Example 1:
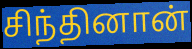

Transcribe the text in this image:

சிந்தினான்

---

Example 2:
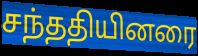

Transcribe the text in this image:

சந்ததியினரை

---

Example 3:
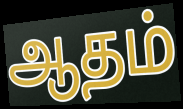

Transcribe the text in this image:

ஆதம்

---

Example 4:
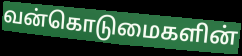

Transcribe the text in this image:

வன்கொடுமைகளின்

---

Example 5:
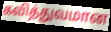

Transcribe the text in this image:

கவித்துவமான